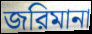
জরিমানা